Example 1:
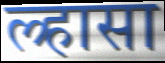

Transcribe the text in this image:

ल्हासा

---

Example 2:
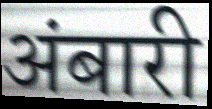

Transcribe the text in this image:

अंबारी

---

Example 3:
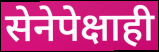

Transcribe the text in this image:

सेनेपेक्षाही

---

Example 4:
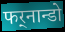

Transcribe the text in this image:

फर्नान्डो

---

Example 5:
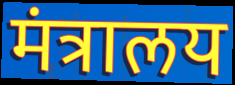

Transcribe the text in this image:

मंत्रालय